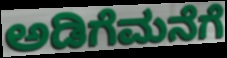
ಅಡಿಗೆಮನೆಗೆ